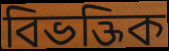
বিভক্তিক